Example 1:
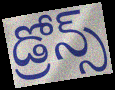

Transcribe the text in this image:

డ్రోన్స్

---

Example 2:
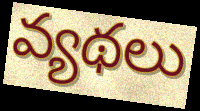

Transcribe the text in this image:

వ్యథలు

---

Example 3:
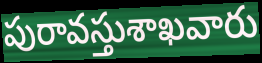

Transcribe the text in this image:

పురావస్తుశాఖవారు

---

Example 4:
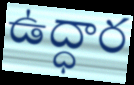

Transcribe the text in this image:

ఉద్ధార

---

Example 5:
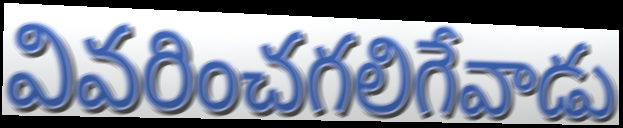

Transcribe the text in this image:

వివరించగలిగేవాడు